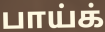
பாய்க்